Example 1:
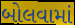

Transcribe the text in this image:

બોલવામાં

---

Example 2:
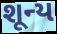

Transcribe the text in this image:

શૂન્ય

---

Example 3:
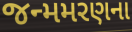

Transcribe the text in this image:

જન્મમરણના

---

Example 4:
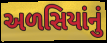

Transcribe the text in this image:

અળસિયાંનું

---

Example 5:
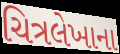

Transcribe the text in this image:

ચિત્રલેખાના